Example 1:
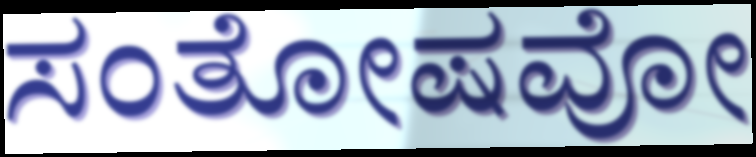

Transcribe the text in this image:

ಸಂತೋಷವೋ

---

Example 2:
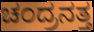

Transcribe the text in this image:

ಚಂದ್ರನತ್ತ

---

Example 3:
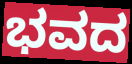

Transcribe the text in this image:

ಭವದ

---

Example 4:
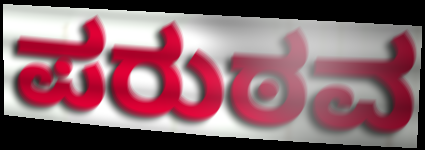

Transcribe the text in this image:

ಪರುಠವ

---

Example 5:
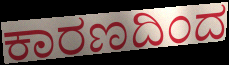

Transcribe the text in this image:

ಕಾರಣದಿಂದ